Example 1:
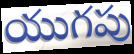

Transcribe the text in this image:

యుగపు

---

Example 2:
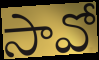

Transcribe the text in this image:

సావో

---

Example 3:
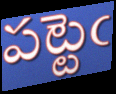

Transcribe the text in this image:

పట్టెఁ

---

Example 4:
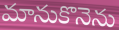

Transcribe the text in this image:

మానుకొనెను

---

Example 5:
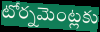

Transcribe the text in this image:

టోర్నమెంట్లకు